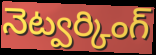
నెట్వర్కింగ్